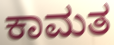
ಕಾಮತ